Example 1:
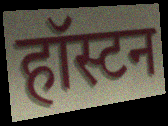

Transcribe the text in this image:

हॉस्टन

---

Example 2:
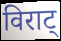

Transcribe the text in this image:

विराट्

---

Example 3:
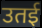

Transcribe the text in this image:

उतई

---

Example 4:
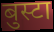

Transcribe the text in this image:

बुस्टा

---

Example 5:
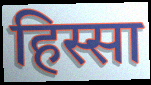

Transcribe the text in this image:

हिस्सा